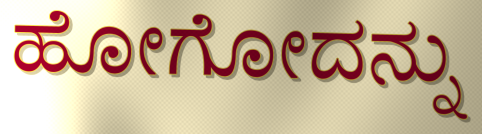
ಹೋಗೋದನ್ನು